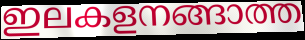
ഇലകളനങ്ങാത്ത